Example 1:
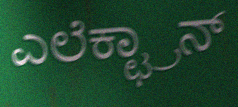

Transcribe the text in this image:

ಎಲೆಕ್ಟ್ರಾನ್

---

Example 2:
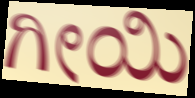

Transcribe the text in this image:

ಗೀಯಿ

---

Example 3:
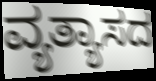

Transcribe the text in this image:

ವ್ಯತ್ಯಾಸದ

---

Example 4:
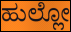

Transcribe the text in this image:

ಹುಲ್ಲೋ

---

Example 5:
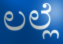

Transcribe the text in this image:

ಲಲ್ಲೆ